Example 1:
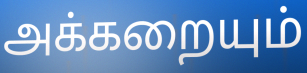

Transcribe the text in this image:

அக்கறையும்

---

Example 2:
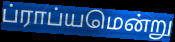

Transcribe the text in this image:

ப்ராப்யமென்று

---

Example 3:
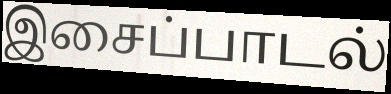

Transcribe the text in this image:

இசைப்பாடல்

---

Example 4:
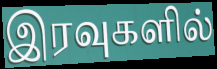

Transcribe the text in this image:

இரவுகளில்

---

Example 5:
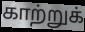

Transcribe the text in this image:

காற்றுக்